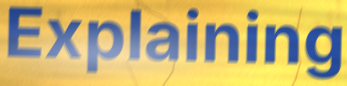
Explaining